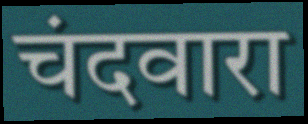
चंदवारा